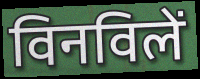
विनविलें